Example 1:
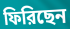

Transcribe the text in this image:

ফিরিছেন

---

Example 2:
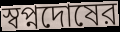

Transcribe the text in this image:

স্বপ্নদোষের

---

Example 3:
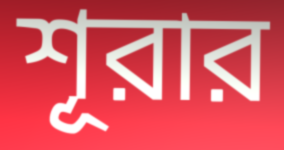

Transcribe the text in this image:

শূরার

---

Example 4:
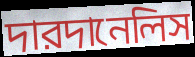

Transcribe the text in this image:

দারদানেলিস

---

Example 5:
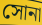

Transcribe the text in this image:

সোনা